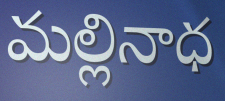
మల్లినాధ